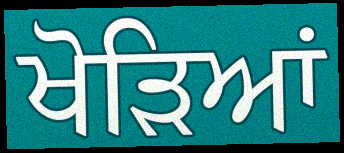
ਖੋੜਿਆਂ